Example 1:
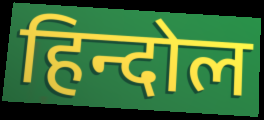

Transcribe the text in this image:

हिन्दोल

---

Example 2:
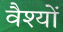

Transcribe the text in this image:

वैश्‍यों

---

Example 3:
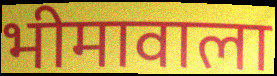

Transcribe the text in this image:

भीमावाला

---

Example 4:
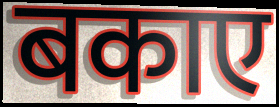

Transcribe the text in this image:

बकाए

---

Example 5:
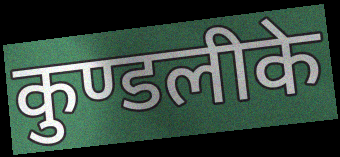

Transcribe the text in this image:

कुण्डलीके